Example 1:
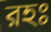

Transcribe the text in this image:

রহঃ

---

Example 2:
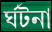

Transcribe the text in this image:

র্ঘটনা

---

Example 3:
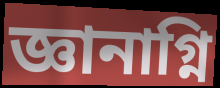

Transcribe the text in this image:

জ্ঞানাগ্নি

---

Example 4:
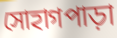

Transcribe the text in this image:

সোহাগপাড়া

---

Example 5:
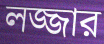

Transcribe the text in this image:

লজ্জার